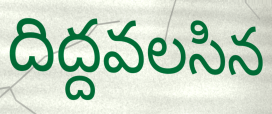
దిద్దవలసిన